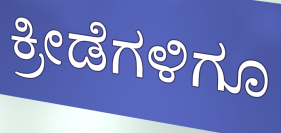
ಕ್ರೀಡೆಗಳಿಗೂ